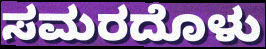
ಸಮರದೊಳು